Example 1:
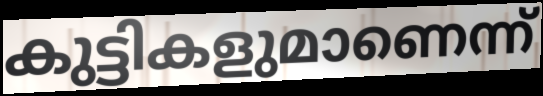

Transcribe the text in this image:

കുട്ടികളുമാണെന്ന്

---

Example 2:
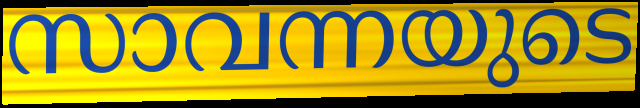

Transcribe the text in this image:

സാവന്നയുടെ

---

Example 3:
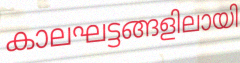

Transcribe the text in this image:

കാലഘട്ടങ്ങളിലായി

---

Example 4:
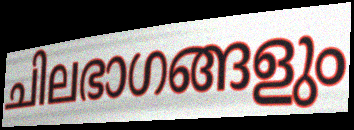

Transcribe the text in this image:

ചിലഭാഗങ്ങളും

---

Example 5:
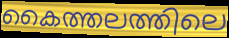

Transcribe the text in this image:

കൈത്തലത്തിലെ